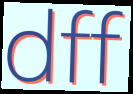
dff